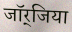
जॉर्जिया